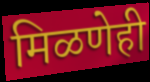
मिळणेही